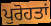
ਪੁਰੋਹਤਾਂ